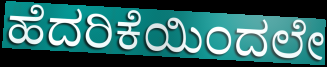
ಹೆದರಿಕೆಯಿಂದಲೇ